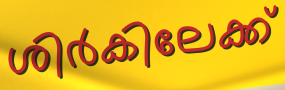
ശിർകിലേക്ക്